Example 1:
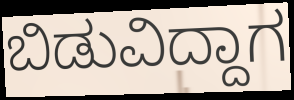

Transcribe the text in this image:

ಬಿಡುವಿದ್ದಾಗ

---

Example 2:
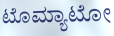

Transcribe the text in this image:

ಟೊಮ್ಯಾಟೋ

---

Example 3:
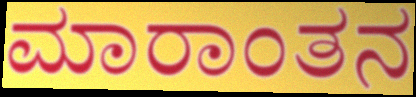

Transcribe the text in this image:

ಮಾರಾಂತನ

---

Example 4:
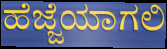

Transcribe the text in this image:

ಹೆಜ್ಜೆಯಾಗಲಿ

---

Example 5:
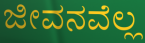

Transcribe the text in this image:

ಜೀವನವೆಲ್ಲ